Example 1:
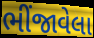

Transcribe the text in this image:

ભીંજાવેલા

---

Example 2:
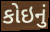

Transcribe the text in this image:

કોઇનું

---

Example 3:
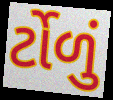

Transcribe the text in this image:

ર્ટોળું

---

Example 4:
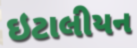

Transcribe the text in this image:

ઇટાલીયન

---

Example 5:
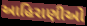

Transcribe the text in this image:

આહિરાણીઓ